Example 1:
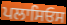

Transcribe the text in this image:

ਪਲਾਸਿਓਸ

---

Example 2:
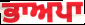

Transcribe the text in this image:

ਭਾਅਪਾ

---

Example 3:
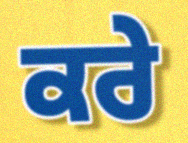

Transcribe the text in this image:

ਕਰੇ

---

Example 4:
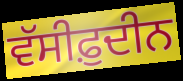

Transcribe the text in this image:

ਵੱਸੀਫ਼ੁਦੀਨ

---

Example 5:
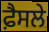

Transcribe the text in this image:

ਫ਼ੈਸਲੇ